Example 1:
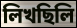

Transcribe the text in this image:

লিখছিলি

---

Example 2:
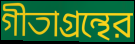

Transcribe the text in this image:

গীতাগ্রন্থের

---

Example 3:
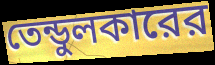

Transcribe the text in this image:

তেন্ডুলকারের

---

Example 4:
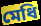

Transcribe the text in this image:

মেধি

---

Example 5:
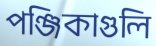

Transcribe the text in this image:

পঞ্জিকাগুলি